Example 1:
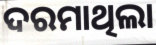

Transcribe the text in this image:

ଦରମାଥିଲା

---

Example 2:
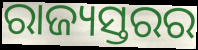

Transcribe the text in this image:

ରାଜ୍ୟସ୍ତରର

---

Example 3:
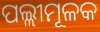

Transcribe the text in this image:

ପଲ୍ଲୀମୂଳକ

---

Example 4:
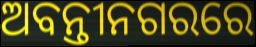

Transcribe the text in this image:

ଅବନ୍ତୀନଗରରେ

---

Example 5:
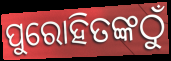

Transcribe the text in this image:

ପୁରୋହିତଙ୍କଠୁଁ